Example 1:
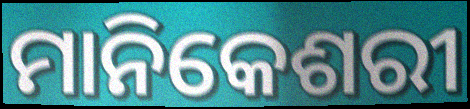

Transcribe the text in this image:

ମାନିକେଶରୀ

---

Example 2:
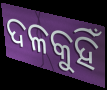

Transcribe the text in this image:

ଦଳକୁହିଁ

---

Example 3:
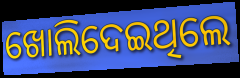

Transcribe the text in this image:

ଖୋଲିଦେଇଥିଲେ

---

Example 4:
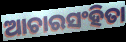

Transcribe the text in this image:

ଆଚାରସଂହିତା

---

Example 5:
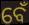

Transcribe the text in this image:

ବେଁ